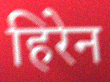
हिरेन